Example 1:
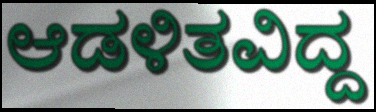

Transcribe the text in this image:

ಆಡಳಿತವಿದ್ದ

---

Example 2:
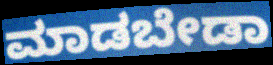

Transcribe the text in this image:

ಮಾಡಬೇಡಾ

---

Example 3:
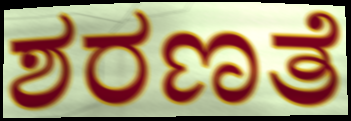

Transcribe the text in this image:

ಶರಣತೆ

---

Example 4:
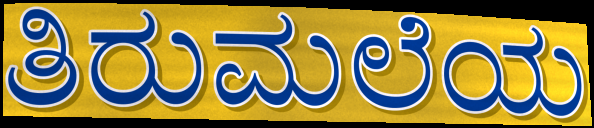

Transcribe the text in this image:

ತಿರುಮಲೆಯ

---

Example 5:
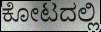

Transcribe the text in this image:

ಕೋಟದಲ್ಲಿ